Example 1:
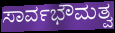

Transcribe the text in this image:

ಸಾರ್ವಭೌಮತ್ವ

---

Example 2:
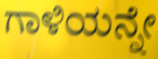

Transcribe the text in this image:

ಗಾಳಿಯನ್ನೇ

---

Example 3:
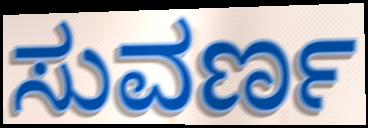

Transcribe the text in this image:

ಸುವರ್ಣ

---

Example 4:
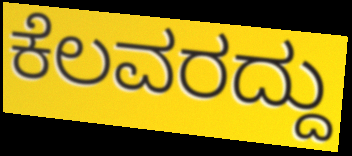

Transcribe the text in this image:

ಕೆಲವರದ್ದು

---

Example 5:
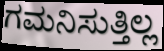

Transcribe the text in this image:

ಗಮನಿಸುತ್ತಿಲ್ಲ